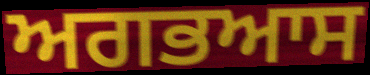
ਅਗਭਆਸ